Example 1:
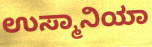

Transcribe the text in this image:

ಉಸ್ಮಾನಿಯಾ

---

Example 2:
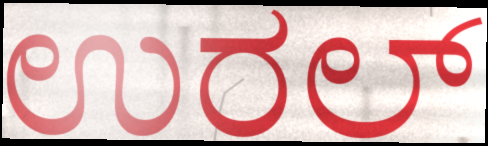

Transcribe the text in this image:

ಉರಲ್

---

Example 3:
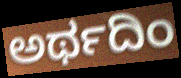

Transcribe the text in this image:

ಅರ್ಥದಿಂ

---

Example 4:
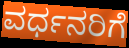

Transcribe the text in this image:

ವರ್ಧನರಿಗೆ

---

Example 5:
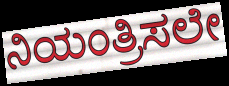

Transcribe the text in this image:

ನಿಯಂತ್ರಿಸಲೇ